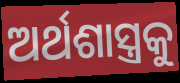
ଅର୍ଥଶାସ୍ତ୍ରକୁ